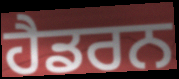
ਹੈਡਰਨ